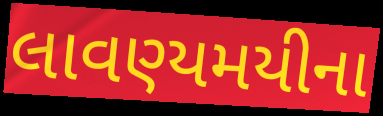
લાવણ્યમયીના